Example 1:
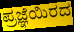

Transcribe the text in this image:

ಪ್ರಜ್ಞೆಯಿರದ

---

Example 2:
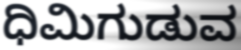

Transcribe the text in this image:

ಧಿಮಿಗುಡುವ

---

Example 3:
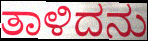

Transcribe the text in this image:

ತಾಳಿದನು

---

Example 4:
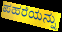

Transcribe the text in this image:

ಪಹರೆಯನ್ನು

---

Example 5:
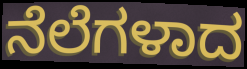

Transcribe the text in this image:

ನೆಲೆಗಳಾದ